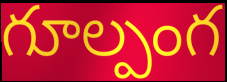
గూల్పంగ